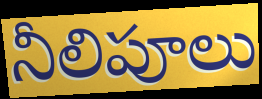
నీలిపూలు